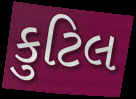
કુટિલ